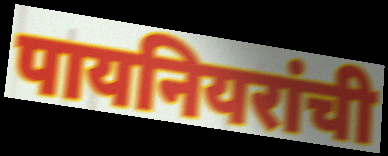
पायनियरांची